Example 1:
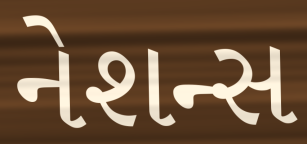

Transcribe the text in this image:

નેશન્સ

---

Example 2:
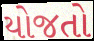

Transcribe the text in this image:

યોજતો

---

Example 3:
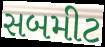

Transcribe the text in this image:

સબમીટ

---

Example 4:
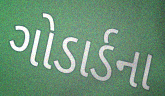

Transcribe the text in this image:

ગોડાર્ડના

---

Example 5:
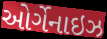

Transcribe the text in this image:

ઓર્ગેનાઇઝ